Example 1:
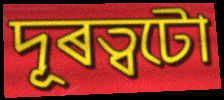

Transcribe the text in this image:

দূৰত্বটো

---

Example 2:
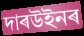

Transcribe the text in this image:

দাৰউইনৰ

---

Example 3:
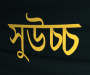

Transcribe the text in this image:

সুউচ্চ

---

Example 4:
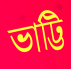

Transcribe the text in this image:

ভাট্টি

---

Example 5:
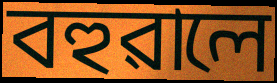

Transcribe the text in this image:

বহুৱালে